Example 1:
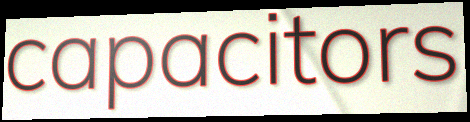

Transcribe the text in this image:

capacitors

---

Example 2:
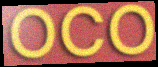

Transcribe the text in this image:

OCO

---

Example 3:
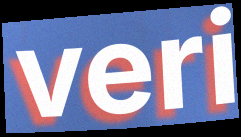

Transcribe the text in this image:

veri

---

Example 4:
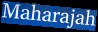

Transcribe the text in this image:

Maharajah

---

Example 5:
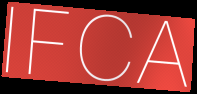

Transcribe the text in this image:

IFCA